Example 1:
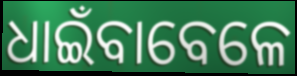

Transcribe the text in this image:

ଧାଇଁବାବେଳେ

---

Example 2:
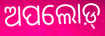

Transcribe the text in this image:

ଅପଲୋଡ଼୍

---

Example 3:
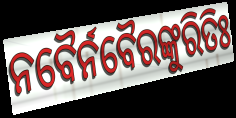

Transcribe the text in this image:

ନବୈର୍ନବୈରଙ୍କୁରିତିଃ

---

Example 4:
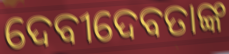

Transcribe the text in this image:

ଦେବୀଦେବତାଙ୍କ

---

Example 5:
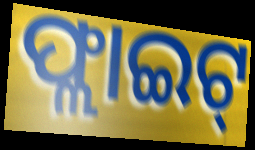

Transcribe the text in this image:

ଫ୍ଲାଇଟ୍